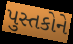
પુસ્તકોને